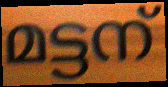
മട്ടന്